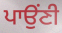
ਪਾਉਂਣੀ